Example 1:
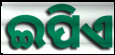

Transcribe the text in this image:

ଇପିଏ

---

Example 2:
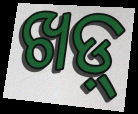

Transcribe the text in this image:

ଖଡ଼୍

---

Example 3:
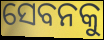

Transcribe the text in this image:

ସେବନକୁ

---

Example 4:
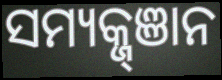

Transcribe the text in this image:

ସମ୍ୟକ୍ଜ୍ଞାନ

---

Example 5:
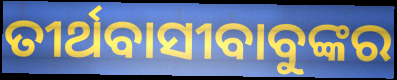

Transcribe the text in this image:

ତୀର୍ଥବାସୀବାବୁଙ୍କର